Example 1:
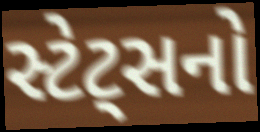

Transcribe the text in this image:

સ્ટેટ્સનો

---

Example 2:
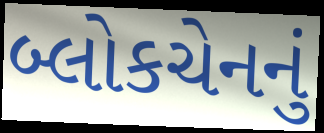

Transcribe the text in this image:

બ્લોકચેનનું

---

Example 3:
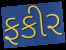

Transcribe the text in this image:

ફકીર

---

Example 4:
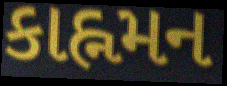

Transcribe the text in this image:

કાહ્નમન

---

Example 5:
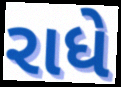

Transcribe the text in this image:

રાધે